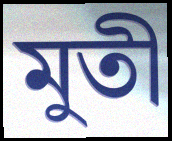
মুতী